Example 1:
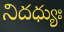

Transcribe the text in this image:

నిదధ్యుః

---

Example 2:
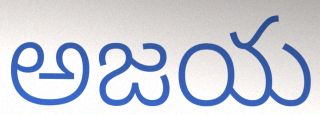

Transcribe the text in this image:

అజయ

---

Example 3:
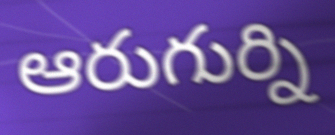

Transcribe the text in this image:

ఆరుగుర్ని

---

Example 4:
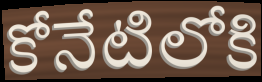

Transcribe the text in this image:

కోనేటిలోకి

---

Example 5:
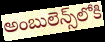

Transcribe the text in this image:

అంబులెన్స్‌లోకి